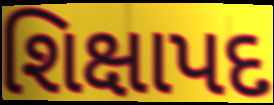
શિક્ષાપદ